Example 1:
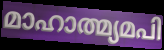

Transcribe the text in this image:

മാഹാത്മ്യമപി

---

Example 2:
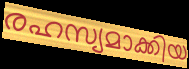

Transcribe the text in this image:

രഹസ്യമാക്കിയ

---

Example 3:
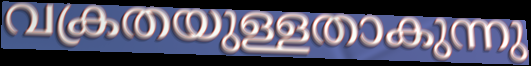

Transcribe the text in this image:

വക്രതയുള്ളതാകുന്നു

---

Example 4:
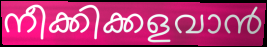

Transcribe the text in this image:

നീക്കിക്കളവാൻ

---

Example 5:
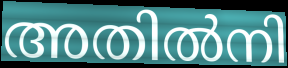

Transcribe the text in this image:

അതിൽനി